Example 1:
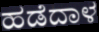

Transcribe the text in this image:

ಹಡೆದಾಳ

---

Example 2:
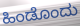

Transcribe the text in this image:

ಹಿಂಡೊಂದು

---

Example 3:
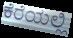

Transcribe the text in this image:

ಕೆರೆಯಲ್ಲಿ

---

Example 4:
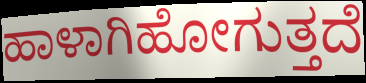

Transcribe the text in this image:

ಹಾಳಾಗಿಹೋಗುತ್ತದೆ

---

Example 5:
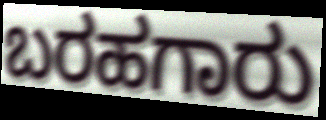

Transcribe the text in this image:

ಬರಹಗಾರು